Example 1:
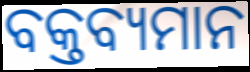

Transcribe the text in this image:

ବକ୍ତବ୍ୟମାନ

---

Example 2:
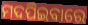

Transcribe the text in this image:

ମଦପିଇବାରେ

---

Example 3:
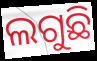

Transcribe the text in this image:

ଲଗୁଛି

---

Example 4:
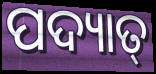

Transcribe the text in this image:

ପଦ୍ୟାତ୍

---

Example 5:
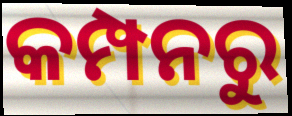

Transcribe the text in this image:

କମ୍ପନରୁ